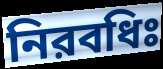
নিরবধিঃ